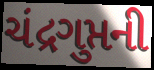
ચંદ્રગુપ્તની